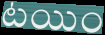
టయిం